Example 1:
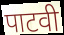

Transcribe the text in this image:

पाटवी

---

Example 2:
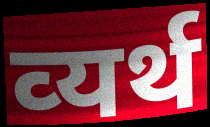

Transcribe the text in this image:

व्‍यर्थ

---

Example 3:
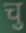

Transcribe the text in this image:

चु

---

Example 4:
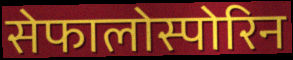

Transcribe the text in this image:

सेफालोस्पोरिन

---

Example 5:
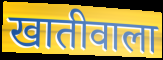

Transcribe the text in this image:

खातीवाला